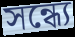
সন্ধ্যে